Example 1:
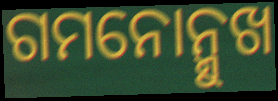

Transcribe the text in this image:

ଗମନୋନ୍ମୁଖ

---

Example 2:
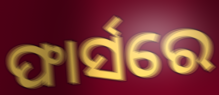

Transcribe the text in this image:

ଫାର୍ସରେ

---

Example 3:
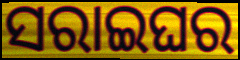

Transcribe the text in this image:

ସରାଇଘର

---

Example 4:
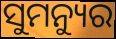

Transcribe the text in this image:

ସୁମନ୍ୟୁର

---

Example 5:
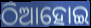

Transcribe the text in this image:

ଠିଆହୋଇ